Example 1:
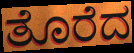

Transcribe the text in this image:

ತೊರೆದ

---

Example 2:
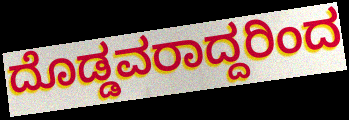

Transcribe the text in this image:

ದೊಡ್ಡವರಾದ್ದರಿಂದ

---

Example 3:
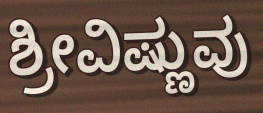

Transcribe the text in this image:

ಶ್ರೀವಿಷ್ಣುವು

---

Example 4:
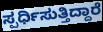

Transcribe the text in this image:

ಸ್ಪರ್ಧಿಸುತ್ತಿದ್ದಾರೆ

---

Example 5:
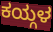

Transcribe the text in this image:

ಕಯ್ಗಳ